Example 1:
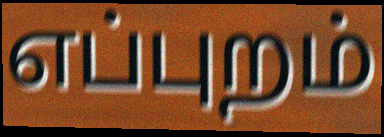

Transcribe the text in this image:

எப்புறம்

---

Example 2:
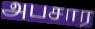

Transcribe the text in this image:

அபசார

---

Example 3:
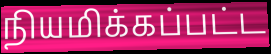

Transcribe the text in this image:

நியமிக்கப்பட்ட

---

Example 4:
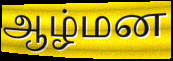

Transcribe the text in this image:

ஆழ்மன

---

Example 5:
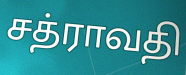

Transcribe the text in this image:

சத்ராவதி